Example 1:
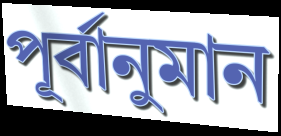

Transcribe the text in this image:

পূৰ্বানুমান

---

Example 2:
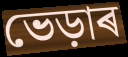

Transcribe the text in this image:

ভেড়াৰ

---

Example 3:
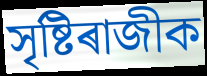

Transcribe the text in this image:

সৃষ্টিৰাজীক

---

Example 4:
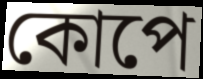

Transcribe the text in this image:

কোপে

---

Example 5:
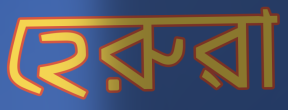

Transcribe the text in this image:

হেৰুৱা